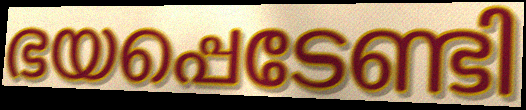
ഭയപ്പെടേണ്ടി